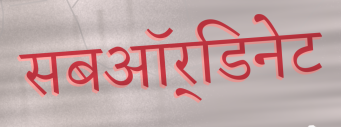
सबऑर्डिनेट